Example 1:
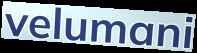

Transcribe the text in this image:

velumani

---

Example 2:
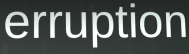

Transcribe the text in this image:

erruption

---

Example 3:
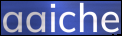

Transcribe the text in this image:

aaiche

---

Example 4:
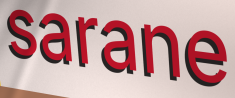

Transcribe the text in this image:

sarane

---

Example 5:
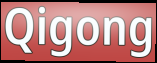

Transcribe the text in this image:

Qigong